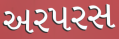
અરપરસ